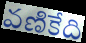
వణికేది